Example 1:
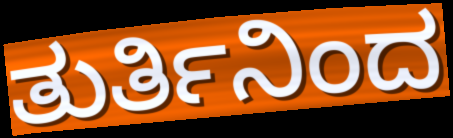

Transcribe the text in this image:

ತುರ್ತಿನಿಂದ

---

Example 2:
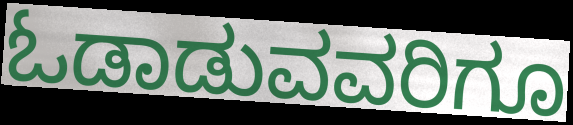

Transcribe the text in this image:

ಓಡಾಡುವವರಿಗೂ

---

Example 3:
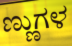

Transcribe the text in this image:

ಣ್ಣುಗಳ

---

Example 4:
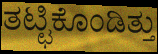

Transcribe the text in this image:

ತಟ್ಟಿಕೊಂಡಿತ್ತು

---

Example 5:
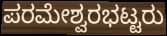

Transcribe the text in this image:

ಪರಮೇಶ್ವರಭಟ್ಟರು